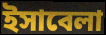
ইসাবেলা